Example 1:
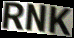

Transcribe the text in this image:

RNK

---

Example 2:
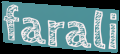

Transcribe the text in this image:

farali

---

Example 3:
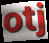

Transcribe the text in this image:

otj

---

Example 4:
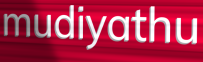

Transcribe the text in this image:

mudiyathu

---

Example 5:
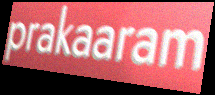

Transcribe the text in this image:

prakaaram